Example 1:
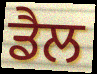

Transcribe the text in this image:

ਡੈਲ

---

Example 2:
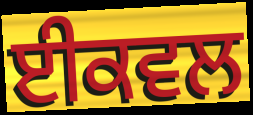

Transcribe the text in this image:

ਈਕਵਲ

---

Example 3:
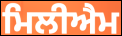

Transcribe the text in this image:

ਮਿਲੀਐਮ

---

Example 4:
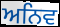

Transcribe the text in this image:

ਅਨਿਵ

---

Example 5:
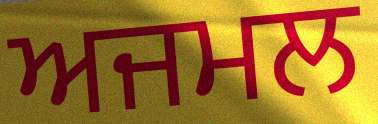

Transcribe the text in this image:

ਅਜਮਲ